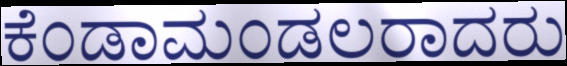
ಕೆಂಡಾಮಂಡಲರಾದರು